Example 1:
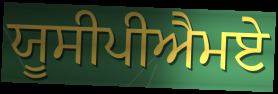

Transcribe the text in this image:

ਯੂਸੀਪੀਐਮਏ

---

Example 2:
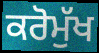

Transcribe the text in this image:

ਕਰੋਮੁੱਖ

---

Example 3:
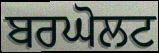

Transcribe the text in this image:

ਬਰਘੋਲਟ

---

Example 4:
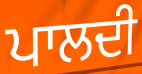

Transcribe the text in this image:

ਪਾਲਦੀ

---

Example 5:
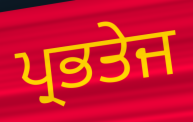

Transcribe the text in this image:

ਪ੍ਰਭਤੇਜ